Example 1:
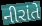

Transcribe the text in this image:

નીરાંતે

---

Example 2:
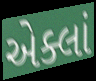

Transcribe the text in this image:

એક્લાં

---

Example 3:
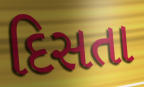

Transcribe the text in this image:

દિસતા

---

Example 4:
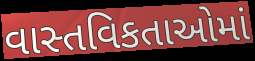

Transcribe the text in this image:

વાસ્તવિકતાઓમાં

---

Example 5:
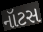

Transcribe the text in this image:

નૉટસ